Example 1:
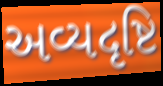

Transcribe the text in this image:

અવ્યદૃષ્ટિ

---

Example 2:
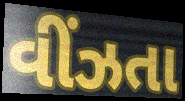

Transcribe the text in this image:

વીંઝતા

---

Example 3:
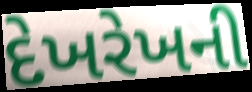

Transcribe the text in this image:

દેખરેખની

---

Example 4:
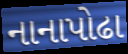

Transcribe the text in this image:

નાનાપોઢા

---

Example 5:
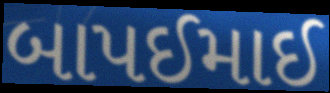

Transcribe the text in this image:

બાપઈમાઈ